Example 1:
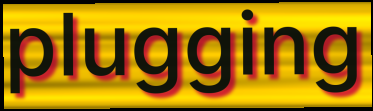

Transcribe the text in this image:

plugging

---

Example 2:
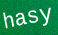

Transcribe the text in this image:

hasy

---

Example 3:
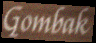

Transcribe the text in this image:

Gombak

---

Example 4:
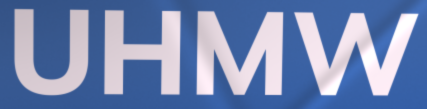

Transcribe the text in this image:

UHMW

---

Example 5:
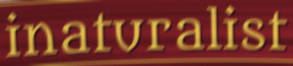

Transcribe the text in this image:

inaturalist